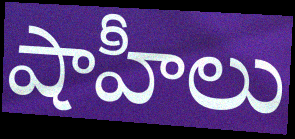
షాహీలు